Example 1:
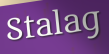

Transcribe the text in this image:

Stalag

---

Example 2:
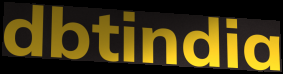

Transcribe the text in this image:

dbtindia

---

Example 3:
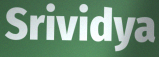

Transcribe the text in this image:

Srividya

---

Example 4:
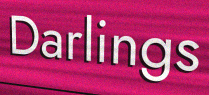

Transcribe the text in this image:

Darlings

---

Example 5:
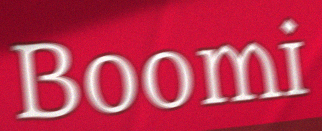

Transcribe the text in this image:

Boomi